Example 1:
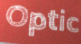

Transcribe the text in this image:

Optic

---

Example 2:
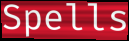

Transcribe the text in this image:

Spells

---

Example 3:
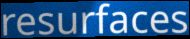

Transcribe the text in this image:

resurfaces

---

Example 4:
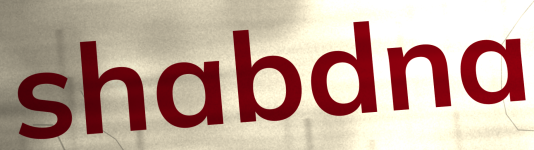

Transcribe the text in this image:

shabdna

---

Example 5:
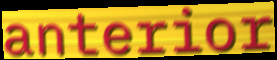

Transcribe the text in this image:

anterior